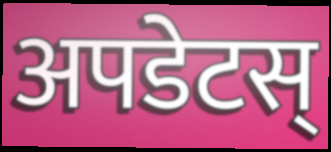
अपडेटस्